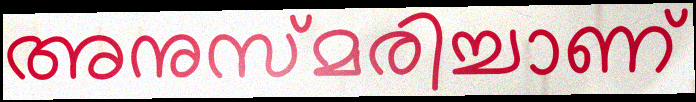
അനുസ്മരിച്ചാണ്